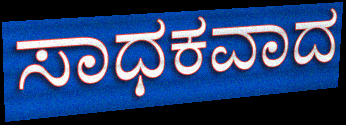
ಸಾಧಕವಾದ